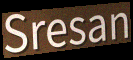
Sresan